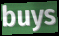
buys